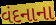
વંદનાના